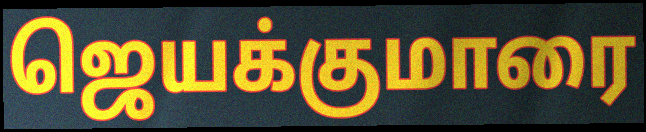
ஜெயக்குமாரை